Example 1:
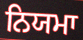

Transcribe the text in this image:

ਨਿਯਮਾ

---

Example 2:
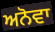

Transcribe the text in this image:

ਅਨੋਵਾ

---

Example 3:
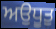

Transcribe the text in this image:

ਅਉਧੂਤੁ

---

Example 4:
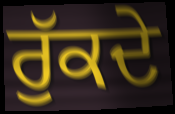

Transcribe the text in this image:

ਰੁੱਕਦੇ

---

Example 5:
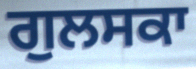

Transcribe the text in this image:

ਗੁਲਸਕਾ